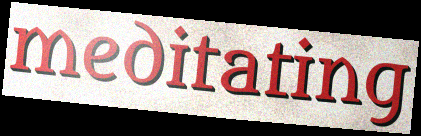
meditating